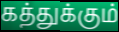
கத்துக்கும்